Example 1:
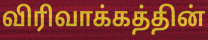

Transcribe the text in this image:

விரிவாக்கத்தின்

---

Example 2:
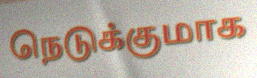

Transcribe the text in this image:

நெடுக்குமாக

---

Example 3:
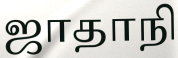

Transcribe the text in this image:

ஜாதாநி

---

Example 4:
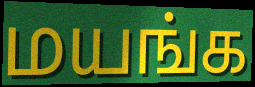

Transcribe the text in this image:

மயங்க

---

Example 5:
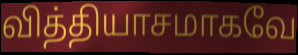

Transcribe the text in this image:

வித்தியாசமாகவே